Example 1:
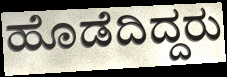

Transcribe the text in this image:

ಹೊಡೆದಿದ್ದರು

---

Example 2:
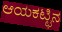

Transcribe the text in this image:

ಆಯಕಟ್ಟಿನ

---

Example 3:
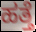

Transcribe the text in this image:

ಹತ್ತೆ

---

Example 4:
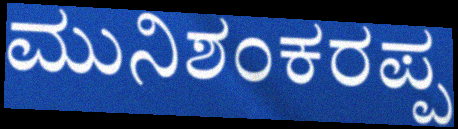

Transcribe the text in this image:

ಮುನಿಶಂಕರಪ್ಪ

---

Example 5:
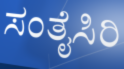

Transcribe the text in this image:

ಸಂತೈಸಿರಿ